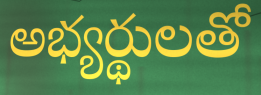
అభ్యర్థులతో